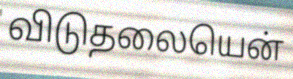
விடுதலையென்